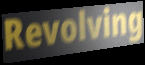
Revolving